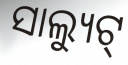
ସାଲ୍ୟୁଟ୍